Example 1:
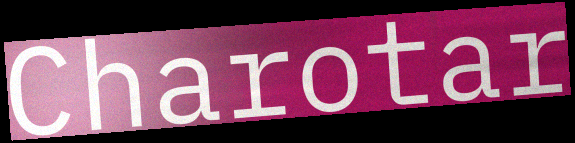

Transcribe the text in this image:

Charotar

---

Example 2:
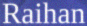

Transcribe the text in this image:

Raihan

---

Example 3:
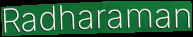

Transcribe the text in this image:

Radharaman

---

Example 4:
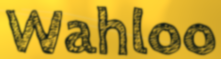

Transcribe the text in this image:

Wahloo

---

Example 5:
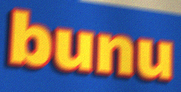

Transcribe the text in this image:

bunu